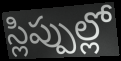
స్లిప్పుల్లో